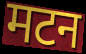
मटन